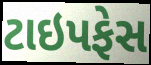
ટાઇપફેસ